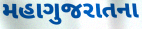
મહાગુજરાતના